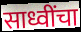
साध्वींचा